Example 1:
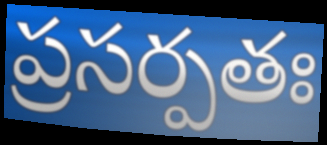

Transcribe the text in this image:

ప్రసర్పతః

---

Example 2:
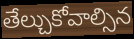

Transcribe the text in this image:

తేల్చుకోవాల్సిన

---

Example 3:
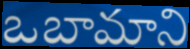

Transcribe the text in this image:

ఒబామాని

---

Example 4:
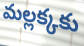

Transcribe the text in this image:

మల్లక్కకు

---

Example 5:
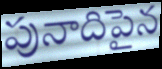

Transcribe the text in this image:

పునాదిపైన